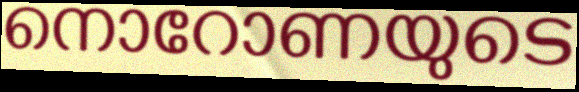
നൊറോണയുടെ